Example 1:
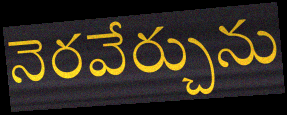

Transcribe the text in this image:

నెరవేర్చును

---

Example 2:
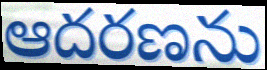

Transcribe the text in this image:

ఆదరణను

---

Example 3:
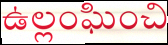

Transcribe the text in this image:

ఉల్లంఘించి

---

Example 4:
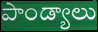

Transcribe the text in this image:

పాండ్యాలు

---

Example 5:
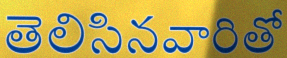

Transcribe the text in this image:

తెలిసినవారితో